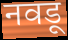
नवडू